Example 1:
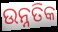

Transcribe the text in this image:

ଉନ୍ନତିକ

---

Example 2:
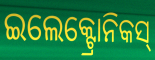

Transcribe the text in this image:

ଇଲେକ୍ଟ୍ରୋନିକସ୍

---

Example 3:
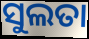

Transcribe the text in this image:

ସୁଲତା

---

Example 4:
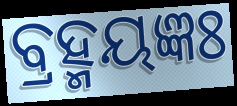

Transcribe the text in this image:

ବ୍ରହ୍ମୟଜ୍ଞଃ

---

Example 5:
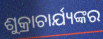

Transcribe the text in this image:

ଶୁକ୍ରାଚାର୍ଯ୍ୟଙ୍କର